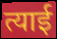
त्याई